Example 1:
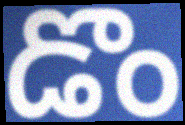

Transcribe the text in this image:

డొం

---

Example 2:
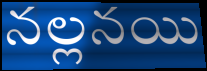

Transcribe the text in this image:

నల్లనయి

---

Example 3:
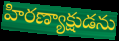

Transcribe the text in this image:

హిరణ్యాక్షుడను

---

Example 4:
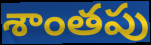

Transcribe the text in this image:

శాంతపు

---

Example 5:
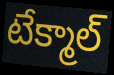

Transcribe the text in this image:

టేక్మాల్